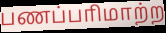
பணப்பரிமாற்ற